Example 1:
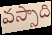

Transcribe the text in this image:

వస్సాది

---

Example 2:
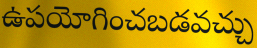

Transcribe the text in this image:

ఉపయోగించబడవచ్చు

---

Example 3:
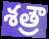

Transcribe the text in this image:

శత్రౌ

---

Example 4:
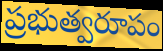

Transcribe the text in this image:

ప్రభుత్వరూపం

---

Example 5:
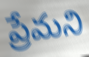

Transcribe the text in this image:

ప్రేమని